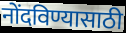
नोंदविण्यासाठी